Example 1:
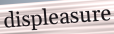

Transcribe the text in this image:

displeasure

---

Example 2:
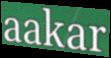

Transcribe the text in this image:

aakar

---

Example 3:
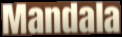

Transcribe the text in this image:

Mandala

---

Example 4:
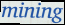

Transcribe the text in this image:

mining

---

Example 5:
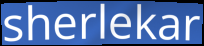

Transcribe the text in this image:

sherlekar